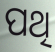
ପଥି